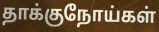
தாக்குநோய்கள்